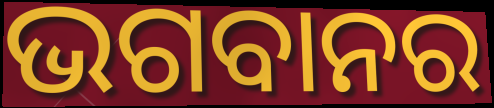
ଭଗବାନର